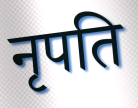
नृपति